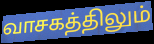
வாசகத்திலும்